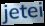
jetei